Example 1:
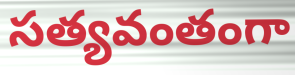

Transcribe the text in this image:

సత్యవంతంగా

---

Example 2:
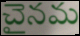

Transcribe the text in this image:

చైనమ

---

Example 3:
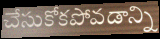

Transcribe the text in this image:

చేసుకోకపోవడాన్ని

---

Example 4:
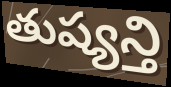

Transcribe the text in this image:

తుష్యన్తి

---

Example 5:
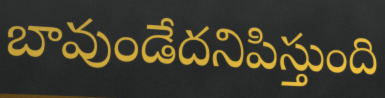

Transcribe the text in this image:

బావుండేదనిపిస్తుంది